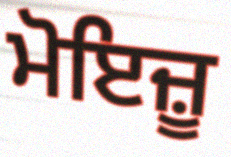
ਮੋਇਜ਼ੂ